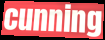
cunning